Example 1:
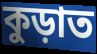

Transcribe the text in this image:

কুড়াত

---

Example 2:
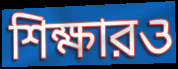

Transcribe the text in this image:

শিক্ষারও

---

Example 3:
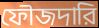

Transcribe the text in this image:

ফৌজদারি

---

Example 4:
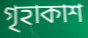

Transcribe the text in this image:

গৃহাকাশ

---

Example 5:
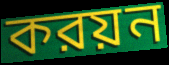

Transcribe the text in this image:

করয়ন